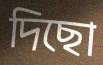
দিছো